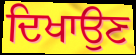
ਦਿਖਾਉਣ